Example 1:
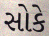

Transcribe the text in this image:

સોકે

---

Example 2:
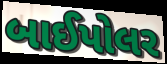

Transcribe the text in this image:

બાઈપોલર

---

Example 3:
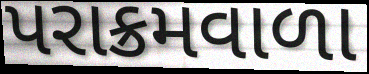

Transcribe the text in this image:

પરાક્રમવાળા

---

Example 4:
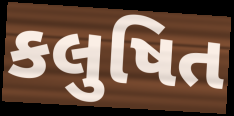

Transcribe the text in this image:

કલુષિત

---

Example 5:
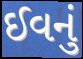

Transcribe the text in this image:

ઈવનું